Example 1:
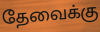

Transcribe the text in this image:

தேவைக்கு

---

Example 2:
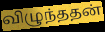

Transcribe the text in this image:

விழுந்ததன்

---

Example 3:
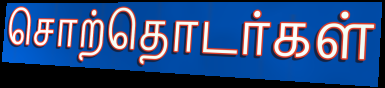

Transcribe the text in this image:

சொற்தொடர்கள்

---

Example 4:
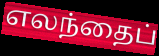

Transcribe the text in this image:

எலந்தைப்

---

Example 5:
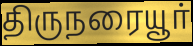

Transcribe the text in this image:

திருநரையூர்